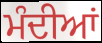
ਮੰਦੀਆਂ